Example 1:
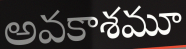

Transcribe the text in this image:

అవకాశమూ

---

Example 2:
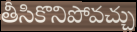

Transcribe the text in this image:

తీసికొనిపోవచ్చు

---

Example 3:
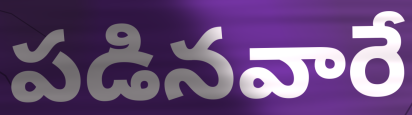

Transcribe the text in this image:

పడినవారే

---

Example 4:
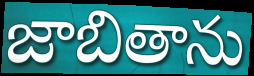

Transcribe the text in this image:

జాబితాను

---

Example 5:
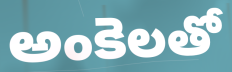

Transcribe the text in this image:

అంకెలతో